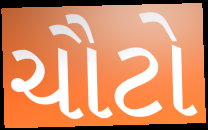
ચૌટો